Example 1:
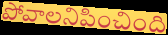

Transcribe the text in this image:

పోవాలనిపించింది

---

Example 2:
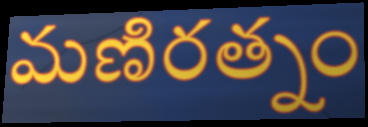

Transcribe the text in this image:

మణిరత్నం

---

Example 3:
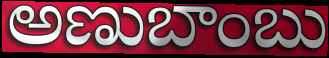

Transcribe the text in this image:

అణుబాంబు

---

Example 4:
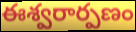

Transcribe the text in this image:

ఈశ్వరార్పణం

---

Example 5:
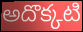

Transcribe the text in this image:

అదొక్కటి